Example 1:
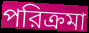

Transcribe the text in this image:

পরিক্রমা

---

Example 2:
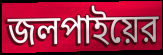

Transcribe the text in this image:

জলপাইয়ের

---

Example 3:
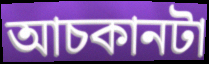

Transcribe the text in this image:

আচকানটা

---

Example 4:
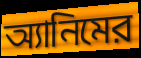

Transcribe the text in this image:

অ্যানিমের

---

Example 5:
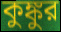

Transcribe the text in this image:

কুঙ্কুর